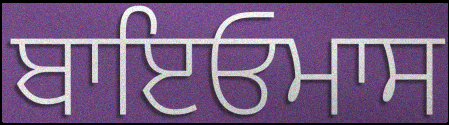
ਬਾਇਓਮਾਸ